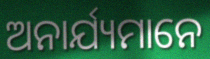
ଅନାର୍ଯ୍ୟମାନେ